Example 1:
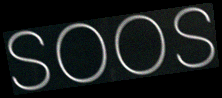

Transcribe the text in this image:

SOOS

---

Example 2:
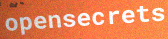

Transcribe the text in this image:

opensecrets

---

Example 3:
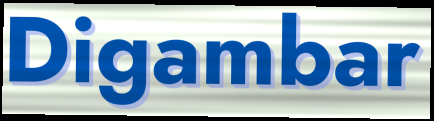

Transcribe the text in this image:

Digambar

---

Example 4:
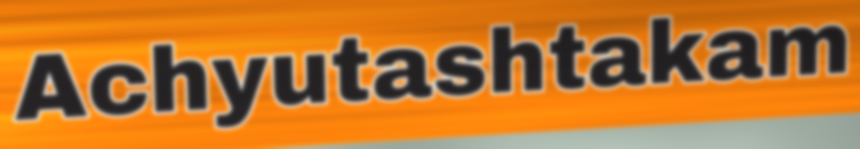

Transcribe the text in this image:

Achyutashtakam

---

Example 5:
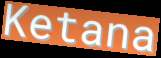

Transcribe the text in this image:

Ketana